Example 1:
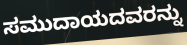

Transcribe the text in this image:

ಸಮುದಾಯದವರನ್ನು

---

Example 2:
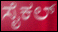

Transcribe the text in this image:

ಸೈಕಲ್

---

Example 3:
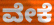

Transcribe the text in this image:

ವೇಕೆ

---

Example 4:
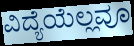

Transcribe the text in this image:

ವಿದ್ಯೆಯೆಲ್ಲವೂ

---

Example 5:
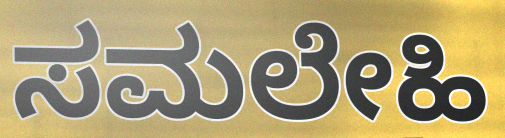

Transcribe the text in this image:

ಸಮಲೇಹಿ